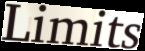
Limits